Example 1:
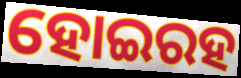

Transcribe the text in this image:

ହୋଇରହ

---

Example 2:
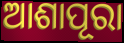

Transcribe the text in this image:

ଆଶାପୂରା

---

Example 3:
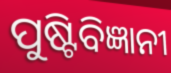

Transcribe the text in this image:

ପୁଷ୍ଟିବିଜ୍ଞାନୀ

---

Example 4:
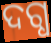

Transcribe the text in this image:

ଦଗ୍ଧ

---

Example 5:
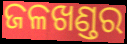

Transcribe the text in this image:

ଜଳଖଣ୍ଡର